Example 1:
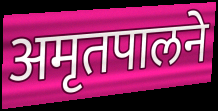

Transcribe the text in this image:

अमृतपालने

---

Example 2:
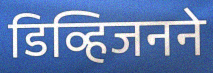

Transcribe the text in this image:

डिव्हिजनने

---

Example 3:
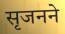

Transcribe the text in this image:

सृजनने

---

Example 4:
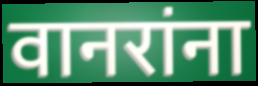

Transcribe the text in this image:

वानरांना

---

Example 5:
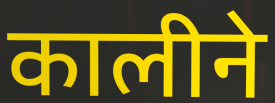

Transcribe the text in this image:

कालीने